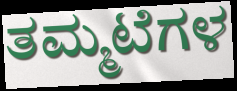
ತಮ್ಮಟೆಗಳ